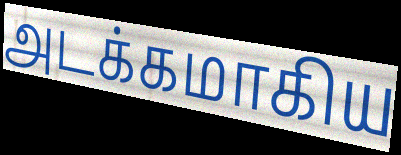
அடக்கமாகிய